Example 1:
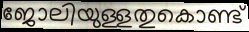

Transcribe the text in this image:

ജോലിയുള്ളതുകൊണ്ട്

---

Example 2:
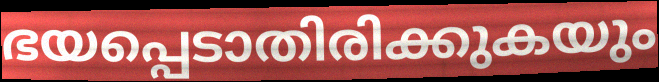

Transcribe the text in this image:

ഭയപ്പെടാതിരിക്കുകയും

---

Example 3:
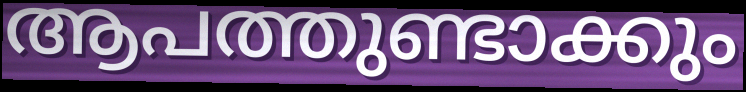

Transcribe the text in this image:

ആപത്തുണ്ടാക്കും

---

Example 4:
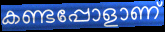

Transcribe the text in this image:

കണ്ടപ്പോളാണ്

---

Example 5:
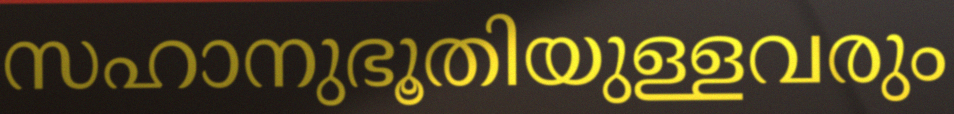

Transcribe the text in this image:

സഹാനുഭൂതിയുള്ളവരും